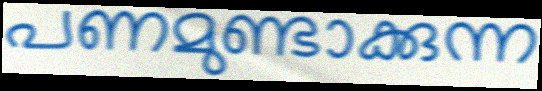
പണമുണ്ടാക്കുന്ന